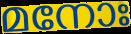
മനോഃ